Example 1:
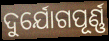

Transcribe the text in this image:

ଦୁର୍ଯୋଗପୂର୍ଣ୍ଣ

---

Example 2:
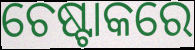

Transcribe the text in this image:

ଚେଷ୍ଟାକରେ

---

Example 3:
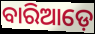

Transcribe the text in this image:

ବାରିଆଡ଼େ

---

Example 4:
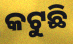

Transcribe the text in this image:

କଟୁଛି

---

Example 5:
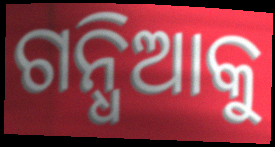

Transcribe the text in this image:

ଗନ୍ଧିଆକୁ